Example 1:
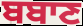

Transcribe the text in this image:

ਬਬਾਣ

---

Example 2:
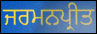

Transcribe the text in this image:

ਜਰਮਨਪ੍ਰੀਤ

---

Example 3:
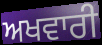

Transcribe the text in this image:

ਅਖਵਾਰੀ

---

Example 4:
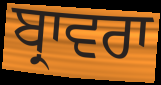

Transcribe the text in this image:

ਬ੍ਰਾਵਰਾ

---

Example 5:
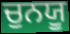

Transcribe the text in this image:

ਚੁਨਯੂ